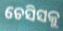
ଚେସିସକୁ